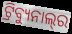
ଟ୍ରିବ୍ୟୁନାଲ୍‍ର